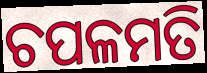
ଚପଳମତି